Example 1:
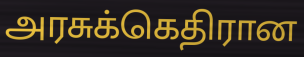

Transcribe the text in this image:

அரசுக்கெதிரான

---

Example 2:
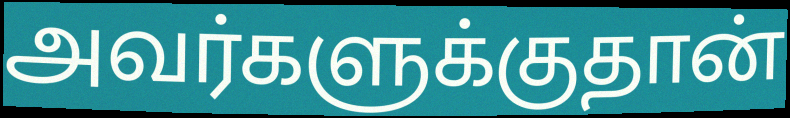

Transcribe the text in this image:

அவர்களுக்குதான்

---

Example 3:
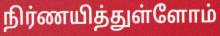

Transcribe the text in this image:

நிர்ணயித்துள்ளோம்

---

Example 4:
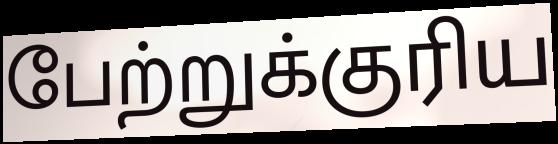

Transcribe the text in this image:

பேற்றுக்குரிய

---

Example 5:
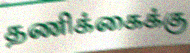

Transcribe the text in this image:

தணிக்கைக்கு